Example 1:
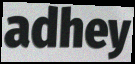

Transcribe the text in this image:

adhey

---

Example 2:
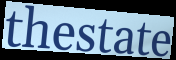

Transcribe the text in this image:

thestate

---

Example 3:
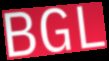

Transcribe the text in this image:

BGL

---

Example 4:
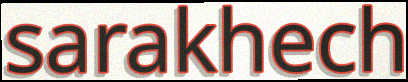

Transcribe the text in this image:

sarakhech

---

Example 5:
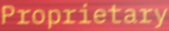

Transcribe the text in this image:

Proprietary